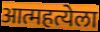
आत्महत्येला